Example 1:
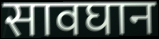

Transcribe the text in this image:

सावघान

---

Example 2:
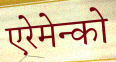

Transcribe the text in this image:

एरेमेन्को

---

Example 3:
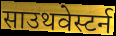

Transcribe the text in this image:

साउथवेस्टर्न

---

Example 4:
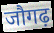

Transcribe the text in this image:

जौगढ़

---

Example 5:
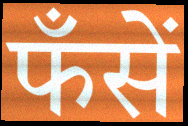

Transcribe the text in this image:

फँसें